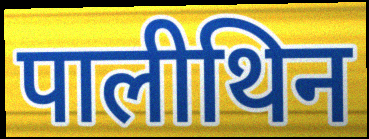
पालीथिन